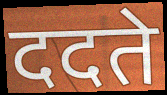
ददते